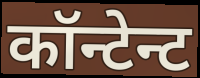
कॉन्टेन्ट